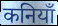
कनियाँ